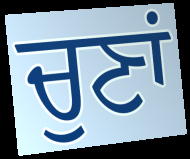
ਚੁਣਾਂ